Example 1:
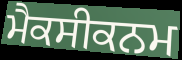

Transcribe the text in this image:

ਮੈਕਸੀਕਨਮ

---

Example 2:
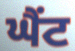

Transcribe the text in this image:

ਘੈਂਟ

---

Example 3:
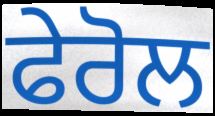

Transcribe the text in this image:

ਫੇਰੋਲ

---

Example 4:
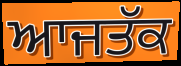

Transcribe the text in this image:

ਆਜਤੱਕ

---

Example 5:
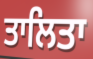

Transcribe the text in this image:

ਤਾਲਿਤਾ